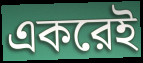
একরেই